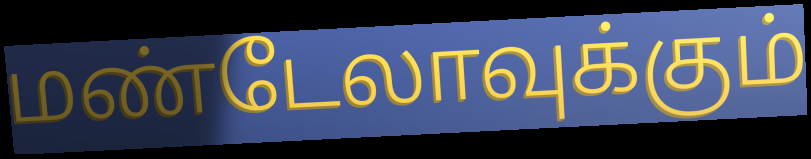
மண்டேலாவுக்கும்